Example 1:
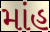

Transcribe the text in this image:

માંહ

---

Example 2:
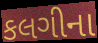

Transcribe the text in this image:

કલગીના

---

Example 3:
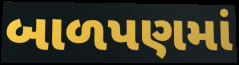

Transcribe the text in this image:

બાળપણમાં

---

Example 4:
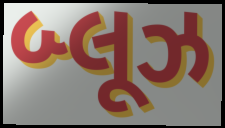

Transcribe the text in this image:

બ્લૂઝ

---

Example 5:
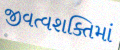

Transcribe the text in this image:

જીવત્વશક્તિમાં